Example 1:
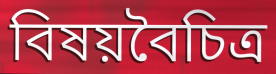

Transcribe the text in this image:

বিষয়বৈচিত্র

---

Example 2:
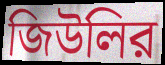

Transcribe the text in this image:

জিউলির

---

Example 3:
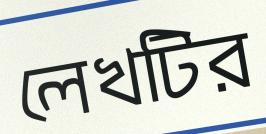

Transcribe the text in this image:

লেখটির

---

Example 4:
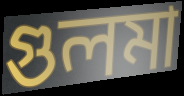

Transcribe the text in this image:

গুলমা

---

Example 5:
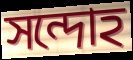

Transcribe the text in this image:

সন্দোহ